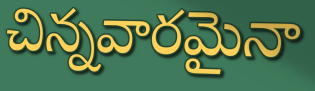
చిన్నవారమైనా